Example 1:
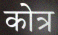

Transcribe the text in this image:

कोत्र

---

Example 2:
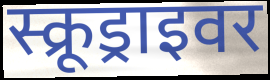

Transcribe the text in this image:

स्क्रूड्राइवर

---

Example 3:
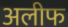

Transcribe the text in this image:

अलीफ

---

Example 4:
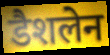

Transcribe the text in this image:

डैशलेन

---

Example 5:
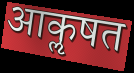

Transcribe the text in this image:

आकॢषत